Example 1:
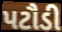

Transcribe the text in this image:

પટૌડી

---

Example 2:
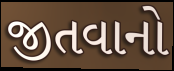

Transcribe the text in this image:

જીતવાનો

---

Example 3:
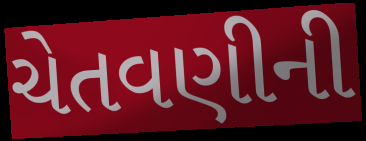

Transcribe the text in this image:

ચેતવણીની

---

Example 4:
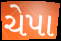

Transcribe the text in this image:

ચેપા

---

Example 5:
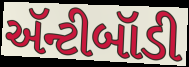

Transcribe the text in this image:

ઍન્ટીબૉડી